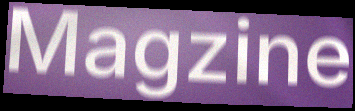
Magzine